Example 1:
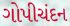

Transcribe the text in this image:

ગોપીચંદન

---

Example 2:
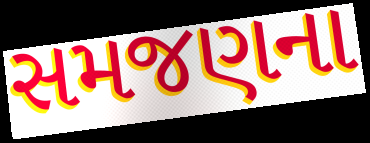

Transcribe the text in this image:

સમજણના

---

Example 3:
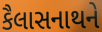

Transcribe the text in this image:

કૈલાસનાથને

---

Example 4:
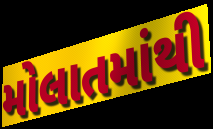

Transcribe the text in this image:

મોલાતમાંથી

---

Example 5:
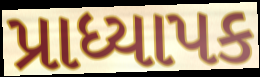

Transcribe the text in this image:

પ્રાધ્યાપક